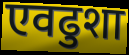
एवढुशा